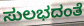
ಸುಲಭದಂತೆ